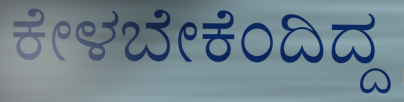
ಕೇಳಬೇಕೆಂದಿದ್ದ